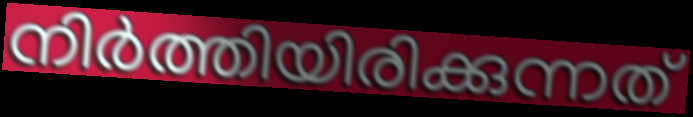
നിർത്തിയിരിക്കുന്നത്